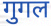
गुगल